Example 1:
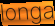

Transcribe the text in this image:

longa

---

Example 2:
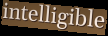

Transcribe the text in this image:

intelligible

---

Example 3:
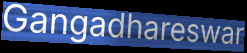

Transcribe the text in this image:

Gangadhareswar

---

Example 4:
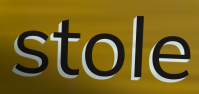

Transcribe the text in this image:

stole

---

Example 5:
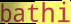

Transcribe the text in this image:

bathi